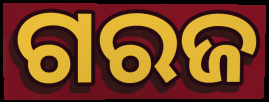
ଗରଜ